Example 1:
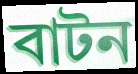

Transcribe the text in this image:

বাটন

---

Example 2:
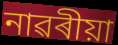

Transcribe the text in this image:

নাৱৰীয়া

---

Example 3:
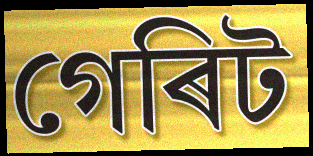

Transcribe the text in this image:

গেৰিট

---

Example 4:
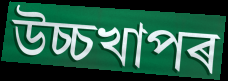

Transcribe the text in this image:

উচ্চখাপৰ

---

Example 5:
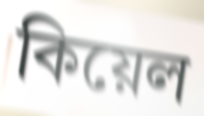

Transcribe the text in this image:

কিয়েল